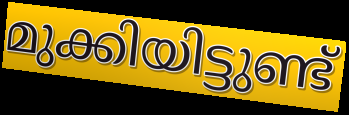
മുക്കിയിട്ടുണ്ട്